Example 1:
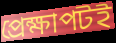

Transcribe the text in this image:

প্রেক্ষাপটই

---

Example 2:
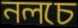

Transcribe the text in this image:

নলচে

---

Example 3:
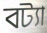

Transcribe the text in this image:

বট্যা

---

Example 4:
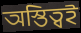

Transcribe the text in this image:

অস্তিত্বই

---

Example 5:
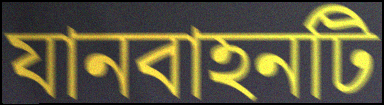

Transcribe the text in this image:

যানবাহনটি